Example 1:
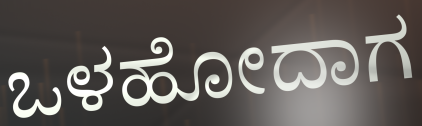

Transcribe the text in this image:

ಒಳಹೋದಾಗ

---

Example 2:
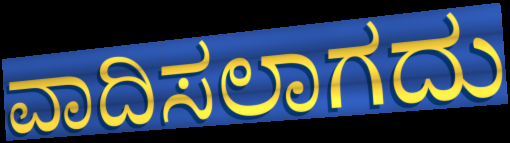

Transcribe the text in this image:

ವಾದಿಸಲಾಗದು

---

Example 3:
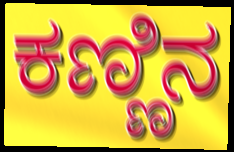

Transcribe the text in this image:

ಕಣ್ಣಿನ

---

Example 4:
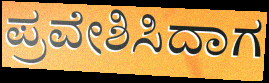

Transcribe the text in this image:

ಪ್ರವೇಶಿಸಿದಾಗ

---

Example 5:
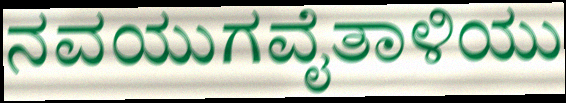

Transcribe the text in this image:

ನವಯುಗವೈತಾಳಿಯು